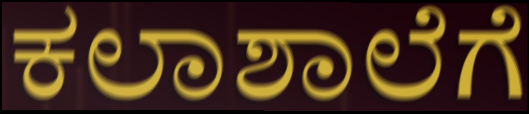
ಕಲಾಶಾಲೆಗೆ